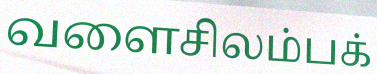
வளைசிலம்பக்